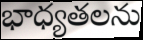
భాధ్యతలను